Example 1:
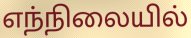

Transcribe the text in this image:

எந்நிலையில்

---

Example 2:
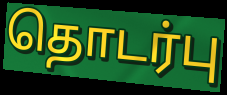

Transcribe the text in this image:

தொடர்பு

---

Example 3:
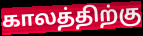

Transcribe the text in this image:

காலத்திற்கு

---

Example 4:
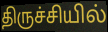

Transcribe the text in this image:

திருச்சியில்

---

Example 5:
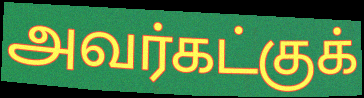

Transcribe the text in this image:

அவர்கட்குக்